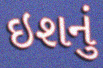
ઇશનું